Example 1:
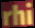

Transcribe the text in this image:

rhi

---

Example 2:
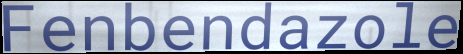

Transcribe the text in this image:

Fenbendazole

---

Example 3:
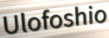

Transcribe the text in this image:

Ulofoshio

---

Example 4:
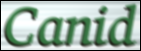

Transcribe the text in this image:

Canid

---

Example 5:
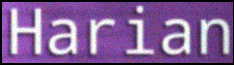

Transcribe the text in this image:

Harian